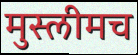
मुस्लीमच